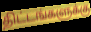
திட்டங்களுக்கு